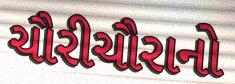
ચૌરીચૌરાનો